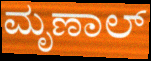
ಮೃಣಾಲ್